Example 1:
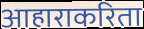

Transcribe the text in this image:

आहाराकरिता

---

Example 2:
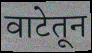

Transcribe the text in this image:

वाटेतून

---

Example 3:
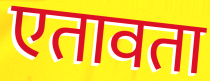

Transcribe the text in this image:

एतावता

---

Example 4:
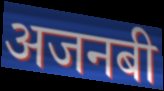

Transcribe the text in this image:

अजनबी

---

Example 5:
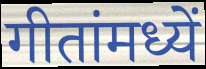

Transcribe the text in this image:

गीतांमध्यें